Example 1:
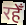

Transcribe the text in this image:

रहेँ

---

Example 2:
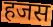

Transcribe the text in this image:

हजस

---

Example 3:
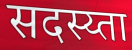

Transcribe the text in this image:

सदस्य्ता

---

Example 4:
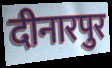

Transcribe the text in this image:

दीनारपुर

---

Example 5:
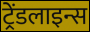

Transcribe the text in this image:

ट्रेंडलाइन्स